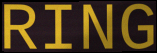
RING